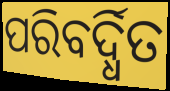
ପରିବର୍ଦ୍ଧିତ